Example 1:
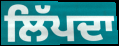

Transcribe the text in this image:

ਲਿੱਪਦਾ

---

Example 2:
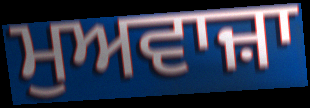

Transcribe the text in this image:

ਮੁਅਵਾਜ਼ਾ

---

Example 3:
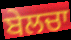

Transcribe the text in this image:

ਬੇਲਚਾ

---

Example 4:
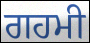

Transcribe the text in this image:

ਗਹਮੀ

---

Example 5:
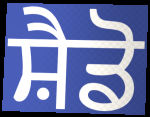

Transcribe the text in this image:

ਸ਼ੈਡੋ